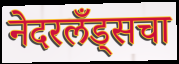
नेदरलँड्सचा